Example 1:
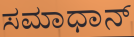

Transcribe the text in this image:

ಸಮಾಧಾನ್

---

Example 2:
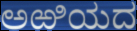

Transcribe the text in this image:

ಅಱಿಯದ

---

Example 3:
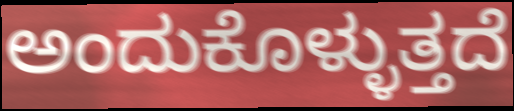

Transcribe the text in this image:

ಅಂದುಕೊಳ್ಳುತ್ತದೆ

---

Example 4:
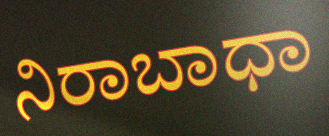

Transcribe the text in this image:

ನಿರಾಬಾಧಾ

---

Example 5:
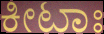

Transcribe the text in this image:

ಕೀಟಾಃ